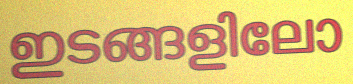
ഇടങ്ങളിലോ